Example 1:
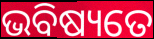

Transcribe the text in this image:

ଭବିଷ୍ୟତେ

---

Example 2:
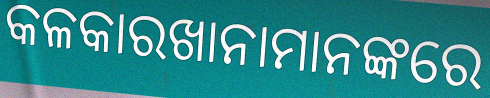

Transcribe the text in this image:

କଳକାରଖାନାମାନଙ୍କରେ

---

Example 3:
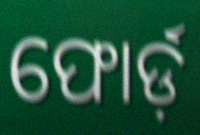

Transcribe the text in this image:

ଫୋର୍ଡ଼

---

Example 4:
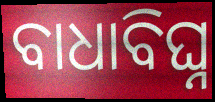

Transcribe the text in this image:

ବାଧାବିଘ୍ନ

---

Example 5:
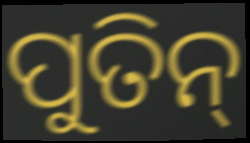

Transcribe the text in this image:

ପୁତିନ୍